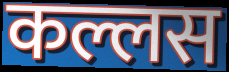
कल्लस